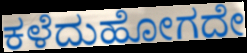
ಕಳೆದುಹೋಗದೇ